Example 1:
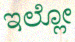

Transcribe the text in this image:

ಇಲ್ಲೋ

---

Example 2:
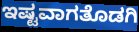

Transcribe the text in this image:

ಇಷ್ಟವಾಗತೊಡಗಿ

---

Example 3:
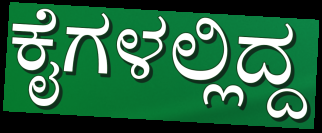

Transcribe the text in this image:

ಕೈಗಳಲ್ಲಿದ್ದ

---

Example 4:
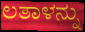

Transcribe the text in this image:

ಲತಾಳನ್ನು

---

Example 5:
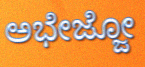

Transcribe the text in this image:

ಅಭೇಜ್ಜೋ